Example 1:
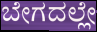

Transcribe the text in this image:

ಬೇಗದಲ್ಲೇ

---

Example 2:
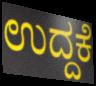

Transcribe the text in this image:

ಉದ್ದಕೆ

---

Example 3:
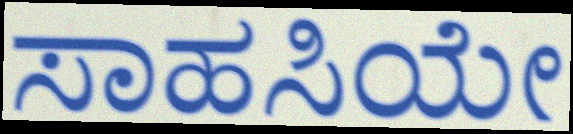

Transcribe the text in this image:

ಸಾಹಸಿಯೇ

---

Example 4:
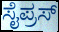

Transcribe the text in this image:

ಸೈಪ್ರಸ್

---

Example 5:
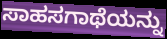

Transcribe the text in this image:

ಸಾಹಸಗಾಥೆಯನ್ನು